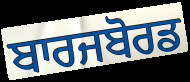
ਬਾਰਜਬੋਰਡ